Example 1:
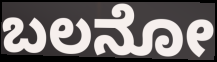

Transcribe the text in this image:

ಬಲನೋ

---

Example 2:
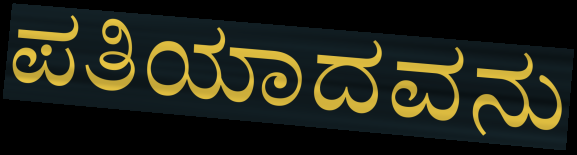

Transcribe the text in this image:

ಪತಿಯಾದವನು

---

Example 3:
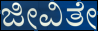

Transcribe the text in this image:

ಜೀವಿತೇ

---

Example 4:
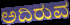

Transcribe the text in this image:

ಅದಿರುವ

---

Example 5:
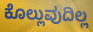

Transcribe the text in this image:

ಕೊಲ್ಲುವುದಿಲ್ಲ